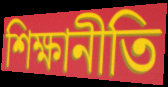
শিক্ষানীতি